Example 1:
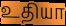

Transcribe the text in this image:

உதியா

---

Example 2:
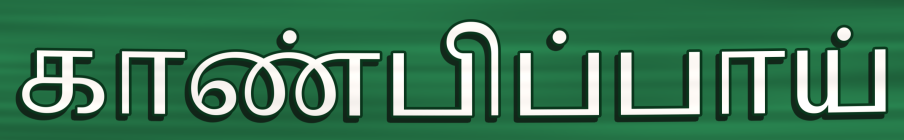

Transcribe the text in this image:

காண்பிப்பாய்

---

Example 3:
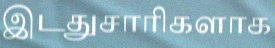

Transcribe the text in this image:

இடதுசாரிகளாக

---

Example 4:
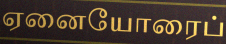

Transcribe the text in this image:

ஏனையோரைப்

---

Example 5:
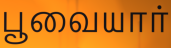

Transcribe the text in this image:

பூவையார்